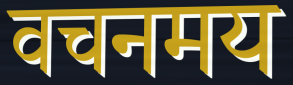
वचनमय